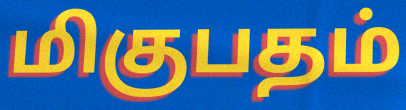
மிகுபதம்